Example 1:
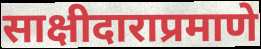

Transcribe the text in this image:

साक्षीदाराप्रमाणे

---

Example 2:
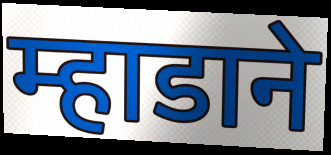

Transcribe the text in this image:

म्हाडाने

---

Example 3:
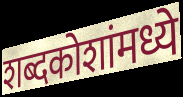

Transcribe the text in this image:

शब्दकोशांमध्ये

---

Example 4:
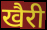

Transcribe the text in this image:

खैरी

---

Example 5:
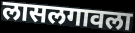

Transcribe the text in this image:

लासलगावला